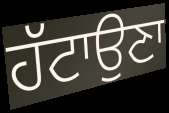
ਹੱਟਾਉਣਾ